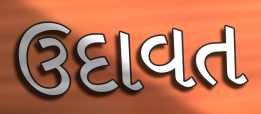
ઉદાવત